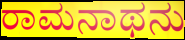
ರಾಮನಾಥನು